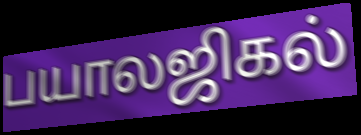
பயாலஜிகல்